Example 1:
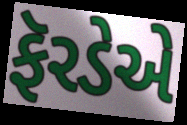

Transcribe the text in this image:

ફૅરડેએ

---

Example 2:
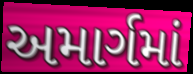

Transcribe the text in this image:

અમાર્ગમાં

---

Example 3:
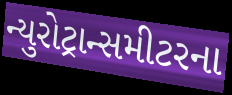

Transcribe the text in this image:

ન્યુરોટ્રાન્સમીટરના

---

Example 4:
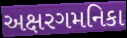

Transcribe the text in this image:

અક્ષરગમનિકા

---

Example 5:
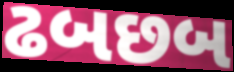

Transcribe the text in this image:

ઢબછબ